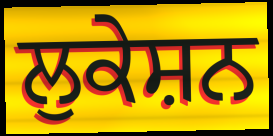
ਲੁਕੇਸ਼ਨ